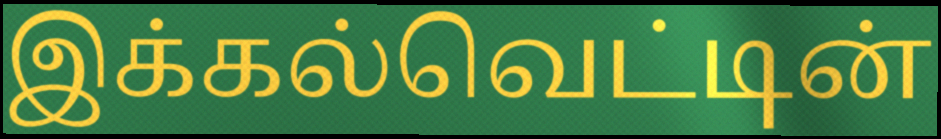
இக்கல்வெட்டின்